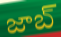
జాబ్